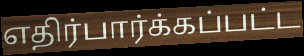
எதிர்பார்க்கப்பட்ட